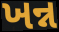
ખન્ન